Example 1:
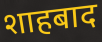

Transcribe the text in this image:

शाहबाद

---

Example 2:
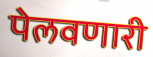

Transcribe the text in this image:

पेलवणारी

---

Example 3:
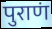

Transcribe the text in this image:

पुराणं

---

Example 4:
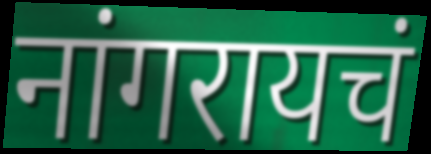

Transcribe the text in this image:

नांगरायचं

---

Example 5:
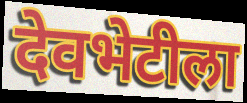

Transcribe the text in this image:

देवभेटीला